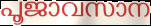
പൂജാവസാന